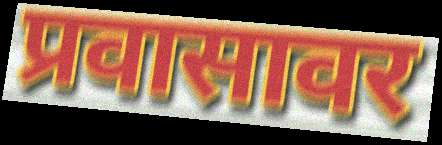
प्रवासावर